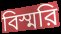
বিস্মরি